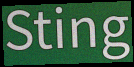
Sting